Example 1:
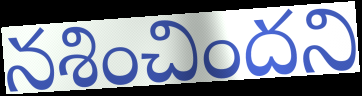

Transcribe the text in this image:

నశించిందని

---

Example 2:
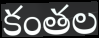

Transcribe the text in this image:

కంతల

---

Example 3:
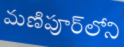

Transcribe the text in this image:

మణిపూర్‌లోని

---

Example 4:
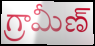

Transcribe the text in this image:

గ్రామీణ్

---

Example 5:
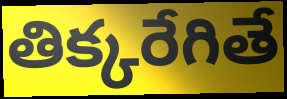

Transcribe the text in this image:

తిక్కరేగితే